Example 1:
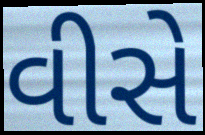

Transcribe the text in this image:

વીસે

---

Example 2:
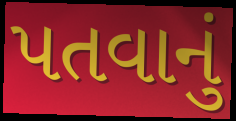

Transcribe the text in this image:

પતવાનું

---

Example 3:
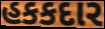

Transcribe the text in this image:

હકકદાર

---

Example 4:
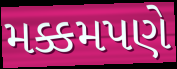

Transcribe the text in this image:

મક્કમપણે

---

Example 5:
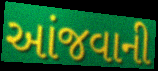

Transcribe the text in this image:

આંજવાની